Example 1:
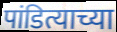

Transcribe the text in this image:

पांडित्याच्या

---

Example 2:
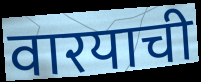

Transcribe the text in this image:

वारयाची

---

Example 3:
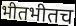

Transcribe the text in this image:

भीतभीतच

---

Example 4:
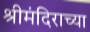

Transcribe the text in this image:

श्रीमंदिराच्या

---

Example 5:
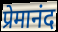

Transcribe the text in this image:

प्रेमानंद